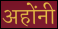
अहोंनी